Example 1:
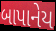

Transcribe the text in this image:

બાપાનેય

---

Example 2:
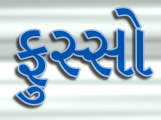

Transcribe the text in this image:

ફુસ્સો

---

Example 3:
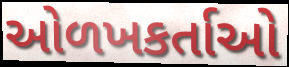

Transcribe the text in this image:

ઓળખકર્તાઓ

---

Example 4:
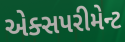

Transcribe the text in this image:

એક્સપરીમેન્ટ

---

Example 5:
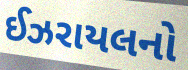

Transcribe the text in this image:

ઈઝરાયલનો